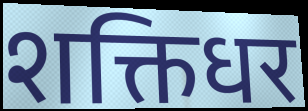
शक्तिधर